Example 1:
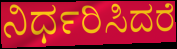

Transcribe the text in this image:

ನಿರ್ಧರಿಸಿದರೆ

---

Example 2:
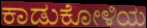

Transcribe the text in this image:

ಕಾಡುಕೋಳಿಯ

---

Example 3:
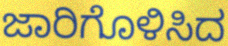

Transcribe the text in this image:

ಜಾರಿಗೊಳಿಸಿದ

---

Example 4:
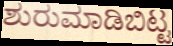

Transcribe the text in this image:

ಶುರುಮಾಡಿಬಿಟ್ಟ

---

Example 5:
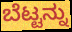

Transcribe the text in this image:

ಬೆಟ್ಟನ್ನು